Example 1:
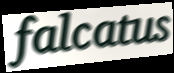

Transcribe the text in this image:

falcatus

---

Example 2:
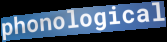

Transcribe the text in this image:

phonological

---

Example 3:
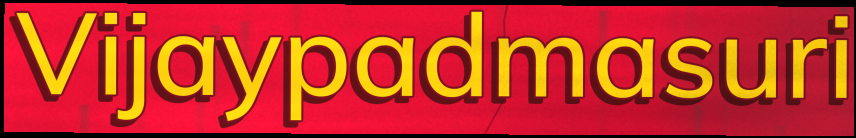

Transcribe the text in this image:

Vijaypadmasuri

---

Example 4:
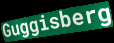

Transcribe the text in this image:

Guggisberg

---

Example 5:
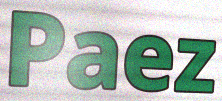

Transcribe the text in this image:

Paez